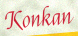
Konkan